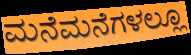
ಮನೆಮನೆಗಳಲ್ಲೂ